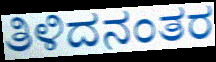
ತಿಳಿದನಂತರ